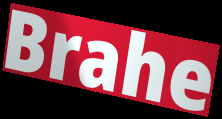
Brahe